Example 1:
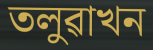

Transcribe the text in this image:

তলুৱাখন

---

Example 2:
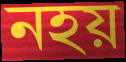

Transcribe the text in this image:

নহয়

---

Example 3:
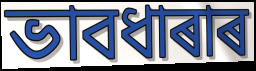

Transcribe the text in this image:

ভাবধাৰাৰ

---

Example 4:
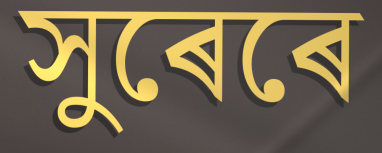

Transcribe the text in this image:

সুৰেৰে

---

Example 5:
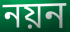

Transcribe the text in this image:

নয়ন